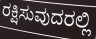
ರಕ್ಷಿಸುವುದರಲ್ಲಿ